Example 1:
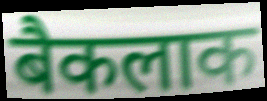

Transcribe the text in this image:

बैकलाक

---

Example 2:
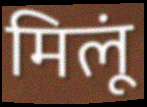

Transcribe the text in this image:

मिलूं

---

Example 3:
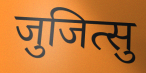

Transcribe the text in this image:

जुजित्सु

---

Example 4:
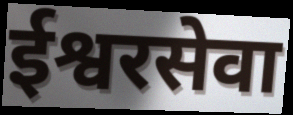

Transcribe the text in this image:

ईश्वरसेवा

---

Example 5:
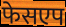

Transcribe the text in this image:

फेसएप